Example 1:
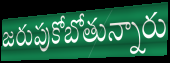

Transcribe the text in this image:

జరుపుకోబోతున్నారు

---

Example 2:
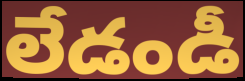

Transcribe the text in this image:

లేడండీ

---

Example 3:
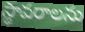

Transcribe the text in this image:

స్థావరాలను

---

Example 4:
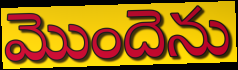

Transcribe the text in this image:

మొందెను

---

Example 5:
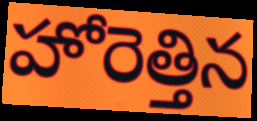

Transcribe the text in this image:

హోరెత్తిన